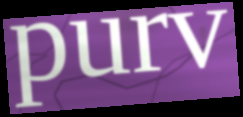
purv